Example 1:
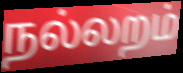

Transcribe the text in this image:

நல்லறம்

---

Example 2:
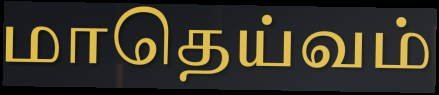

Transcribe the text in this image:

மாதெய்வம்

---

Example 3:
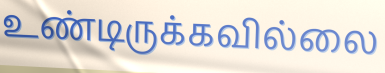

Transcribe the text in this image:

உண்டிருக்கவில்லை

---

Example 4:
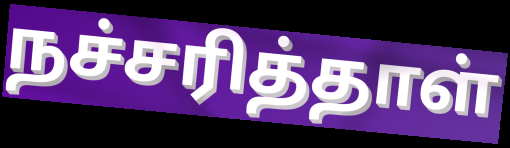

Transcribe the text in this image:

நச்சரித்தாள்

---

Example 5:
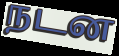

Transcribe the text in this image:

நடன